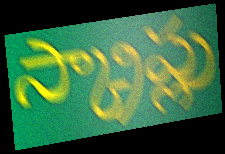
స్క్రాప్లు